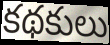
కథకులు